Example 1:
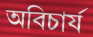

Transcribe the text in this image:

অবিচার্য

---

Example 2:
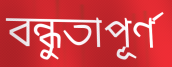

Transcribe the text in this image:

বন্ধুতাপূর্ণ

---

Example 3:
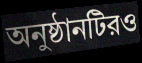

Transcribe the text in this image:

অনুষ্ঠানটিরও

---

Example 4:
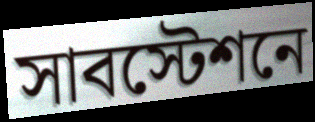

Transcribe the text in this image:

সাবস্টেশনে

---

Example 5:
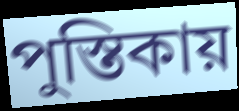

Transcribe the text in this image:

পুস্তিকায়